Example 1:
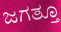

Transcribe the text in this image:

ಜಗತ್ತೂ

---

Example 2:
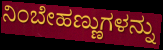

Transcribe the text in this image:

ನಿಂಬೇಹಣ್ಣುಗಳನ್ನು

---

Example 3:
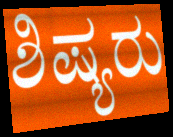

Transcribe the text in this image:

ಶಿಷ್ಯರು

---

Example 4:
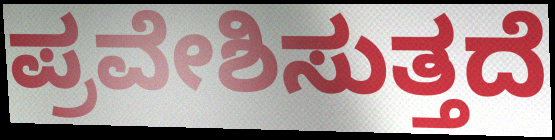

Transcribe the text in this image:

ಪ್ರವೇಶಿಸುತ್ತದೆ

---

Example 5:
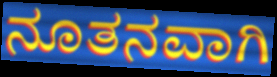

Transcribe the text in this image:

ನೂತನವಾಗಿ